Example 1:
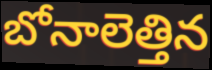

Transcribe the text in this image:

బోనాలెత్తిన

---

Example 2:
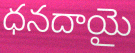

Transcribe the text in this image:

ధనదాయై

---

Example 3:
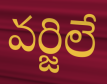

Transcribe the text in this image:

వర్జిలే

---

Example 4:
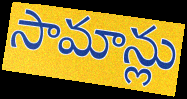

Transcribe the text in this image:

సామాన్లు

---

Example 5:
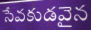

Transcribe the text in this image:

సేవకుడవైన